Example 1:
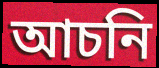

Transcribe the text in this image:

আচনি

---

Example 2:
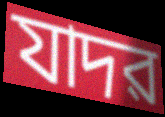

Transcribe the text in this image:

যাদৱ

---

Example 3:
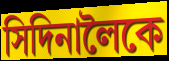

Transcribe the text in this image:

সিদিনালৈকে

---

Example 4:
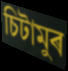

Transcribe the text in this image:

চিটামুৰ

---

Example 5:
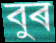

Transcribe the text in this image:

বুৰ